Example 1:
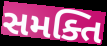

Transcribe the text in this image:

સમક્તિ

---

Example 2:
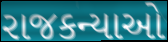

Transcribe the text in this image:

રાજકન્યાઓ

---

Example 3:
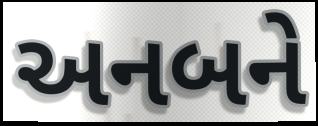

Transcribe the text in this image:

અનબને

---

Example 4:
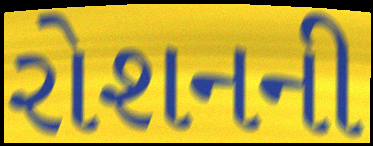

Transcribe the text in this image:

રોશનની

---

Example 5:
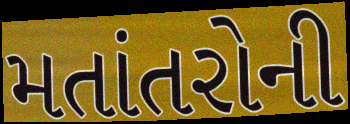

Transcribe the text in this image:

મતાંતરોની